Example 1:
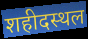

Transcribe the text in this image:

शहीदस्थल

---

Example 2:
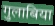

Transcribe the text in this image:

गुलाबिया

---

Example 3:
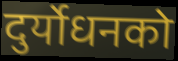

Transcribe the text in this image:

दुर्योधनको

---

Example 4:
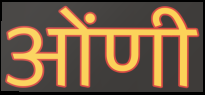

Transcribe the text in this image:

ओंणी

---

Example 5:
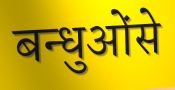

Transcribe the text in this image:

बन्धुओंसे